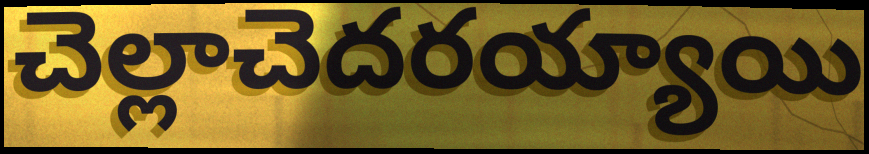
చెల్లాచెదరయ్యాయి